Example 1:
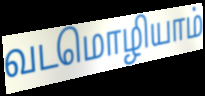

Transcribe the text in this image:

வடமொழியாம்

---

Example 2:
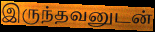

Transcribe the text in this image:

இருந்தவனுடன்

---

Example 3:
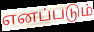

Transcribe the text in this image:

எனப்படும்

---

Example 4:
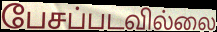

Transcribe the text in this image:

பேசப்படவில்லை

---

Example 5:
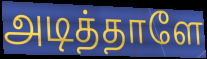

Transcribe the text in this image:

அடித்தாளே